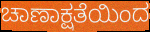
ಚಾಣಾಕ್ಷತೆಯಿಂದ